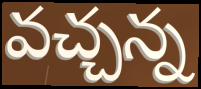
వచ్చన్న